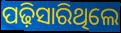
ପଢ଼ିସାରିଥିଲେ